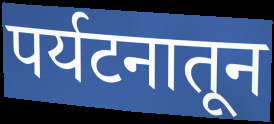
पर्यटनातून